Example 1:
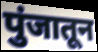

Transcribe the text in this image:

पुंजातून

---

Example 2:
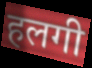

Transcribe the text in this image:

हलगी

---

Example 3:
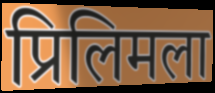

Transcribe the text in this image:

प्रिलिमला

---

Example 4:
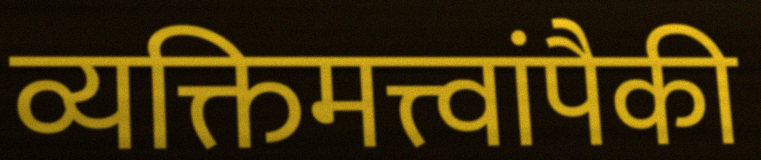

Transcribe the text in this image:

व्यक्तिमत्त्वांपैकी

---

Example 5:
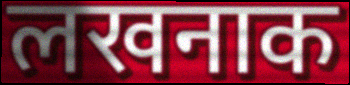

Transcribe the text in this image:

लखनाक